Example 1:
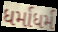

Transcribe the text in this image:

ધર્માધર્મ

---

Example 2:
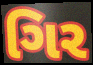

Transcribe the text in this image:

ગિર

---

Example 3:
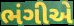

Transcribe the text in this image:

ભંગીએ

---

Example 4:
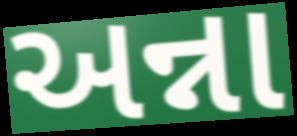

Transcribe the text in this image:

અન્ના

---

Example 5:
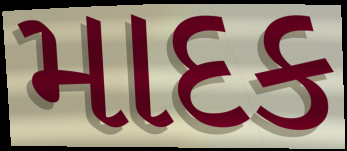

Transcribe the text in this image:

માદક